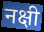
नक्षी